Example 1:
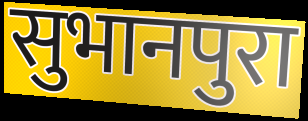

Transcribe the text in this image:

सुभानपुरा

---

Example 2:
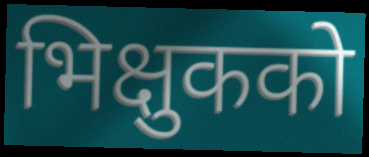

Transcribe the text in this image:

भिक्षुकको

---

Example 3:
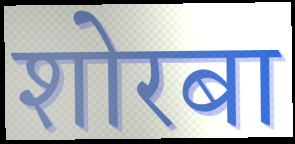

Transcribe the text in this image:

शोरबा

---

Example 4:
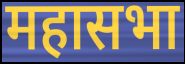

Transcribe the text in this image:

महासभा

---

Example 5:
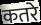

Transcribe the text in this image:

कतरे